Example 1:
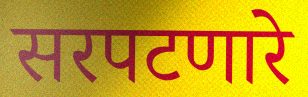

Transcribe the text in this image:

सरपटणारे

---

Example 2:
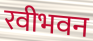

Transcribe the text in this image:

रवीभवन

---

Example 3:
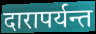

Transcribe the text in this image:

दारापर्यन्त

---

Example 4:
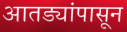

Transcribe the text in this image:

आतड्यांपासून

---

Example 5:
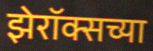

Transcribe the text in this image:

झेरॉक्सच्या